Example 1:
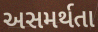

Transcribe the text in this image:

અસમર્થતા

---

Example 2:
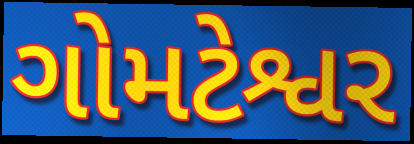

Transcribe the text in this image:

ગોમટેશ્વર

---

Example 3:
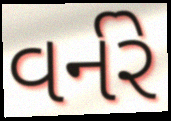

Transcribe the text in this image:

વર્નરે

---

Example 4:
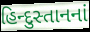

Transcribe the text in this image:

હિન્દુસ્તાનનાં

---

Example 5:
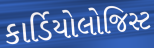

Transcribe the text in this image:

કાર્ડિયોલોજિસ્ટ